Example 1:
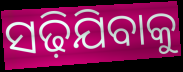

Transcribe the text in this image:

ସଢ଼ିଯିବାକୁ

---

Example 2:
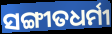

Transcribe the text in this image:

ସଙ୍ଗୀତଧର୍ମୀ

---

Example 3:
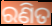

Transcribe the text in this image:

ରଣିତ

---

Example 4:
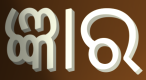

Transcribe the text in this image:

ଜ୍ଞାର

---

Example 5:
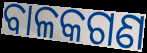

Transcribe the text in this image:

ବାଳକଗଣ